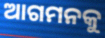
ଆଗମନକୁ